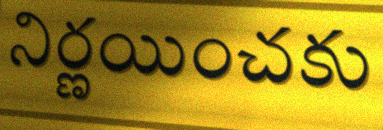
నిర్ణయించకు